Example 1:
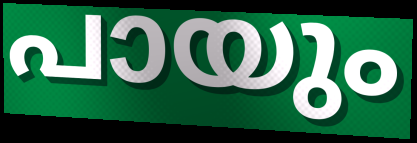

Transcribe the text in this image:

പായും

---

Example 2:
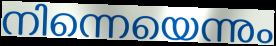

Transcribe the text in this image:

നിന്നെയെന്നും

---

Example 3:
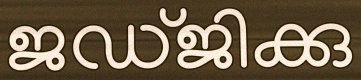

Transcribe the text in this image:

ജഡ്ജിക്കു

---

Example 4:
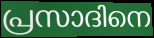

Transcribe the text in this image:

പ്രസാദിനെ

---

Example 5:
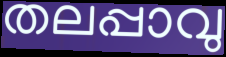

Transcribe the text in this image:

തലപ്പാവു